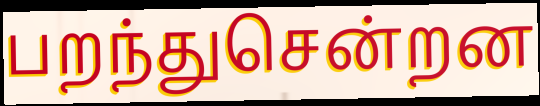
பறந்துசென்றன